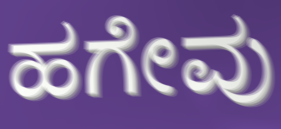
ಹಗೇವು